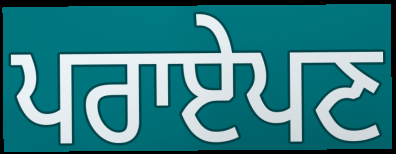
ਪਰਾਏਪਣ